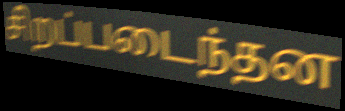
சிறப்படைந்தன